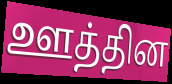
ஊத்தின